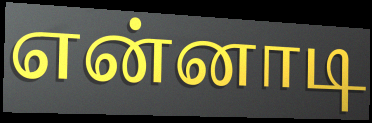
என்னாடி